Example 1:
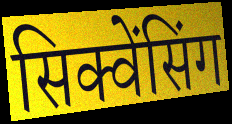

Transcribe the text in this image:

सिक्वेंसिंग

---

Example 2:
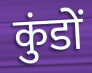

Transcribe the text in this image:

कुंडों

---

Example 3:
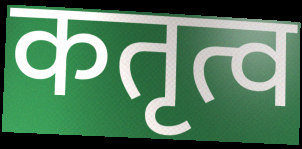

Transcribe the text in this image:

कतृत्व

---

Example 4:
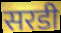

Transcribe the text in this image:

सरडी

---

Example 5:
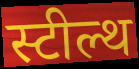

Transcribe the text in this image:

स्टील्थ